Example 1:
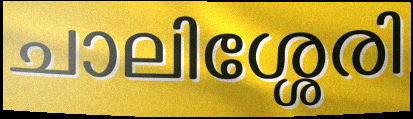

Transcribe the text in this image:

ചാലിശ്ശേരി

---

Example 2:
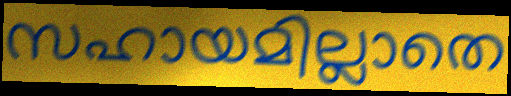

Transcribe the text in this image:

സഹായമില്ലാതെ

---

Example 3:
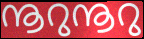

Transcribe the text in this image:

നൂറുനൂറു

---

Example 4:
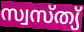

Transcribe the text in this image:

സ്വസ്ത്യ്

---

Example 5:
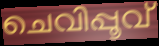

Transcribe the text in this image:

ചെവിപ്പൂവ്